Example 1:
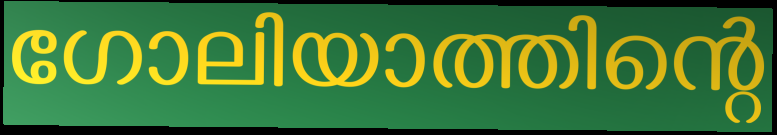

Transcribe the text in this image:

ഗോലിയാത്തിന്റെ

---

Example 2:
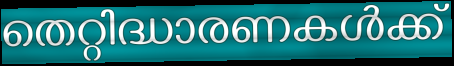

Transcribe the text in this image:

തെറ്റിദ്ധാരണകൾക്ക്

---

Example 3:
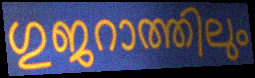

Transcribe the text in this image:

ഗുജറാത്തിലും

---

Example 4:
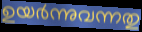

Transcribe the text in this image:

ഉയർന്നുവന്നതു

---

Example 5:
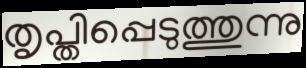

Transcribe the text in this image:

തൃപ്തിപ്പെടുത്തുന്നു